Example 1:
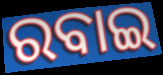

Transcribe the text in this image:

ରବାଇ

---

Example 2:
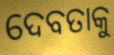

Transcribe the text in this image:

ଦେବତାକୁ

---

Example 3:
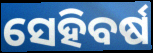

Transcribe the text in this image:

ସେହିବର୍ଷ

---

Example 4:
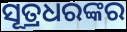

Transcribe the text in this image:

ସୂତ୍ରଧରଙ୍କର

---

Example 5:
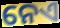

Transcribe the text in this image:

ନେଏ